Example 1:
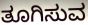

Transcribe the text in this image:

ತೂಗಿಸುವ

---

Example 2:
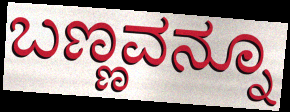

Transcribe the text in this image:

ಬಣ್ಣವನ್ನೂ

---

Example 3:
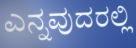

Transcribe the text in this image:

ಎನ್ನವುದರಲ್ಲಿ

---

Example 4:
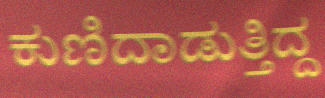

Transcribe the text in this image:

ಕುಣಿದಾಡುತ್ತಿದ್ದ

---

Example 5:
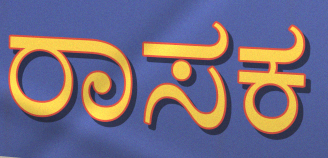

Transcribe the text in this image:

ರಾಸಕ